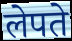
लेपते